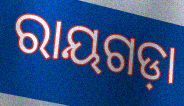
ରାୟଗଡ଼ା